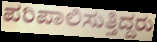
ಪರಿಪಾಲಿಸುತ್ತಿದ್ದರು